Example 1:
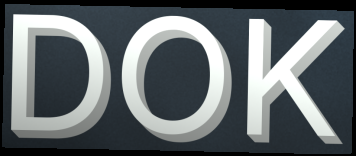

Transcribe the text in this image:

DOK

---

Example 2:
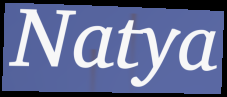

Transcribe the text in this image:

Natya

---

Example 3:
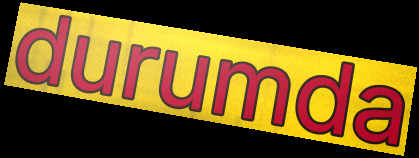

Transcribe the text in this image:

durumda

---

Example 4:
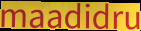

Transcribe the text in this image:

maadidru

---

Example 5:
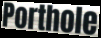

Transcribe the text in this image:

Porthole